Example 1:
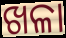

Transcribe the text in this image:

ଖଳା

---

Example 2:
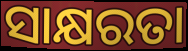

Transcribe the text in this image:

ସାକ୍ଷରତା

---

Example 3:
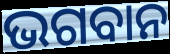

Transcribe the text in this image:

ଭଗବାନ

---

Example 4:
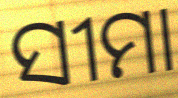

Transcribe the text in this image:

ସୀମା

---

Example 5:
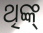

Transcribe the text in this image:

ଥିଙ୍କ୍